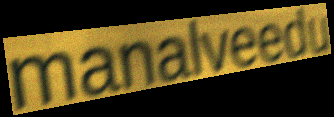
manalveedu